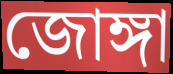
জোঙ্গা